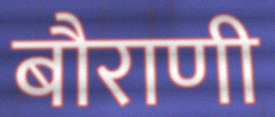
बौराणी